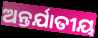
ଅନ୍ତର୍ଯାତୀୟ